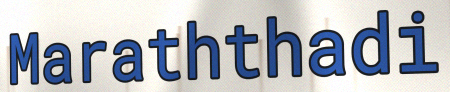
Maraththadi